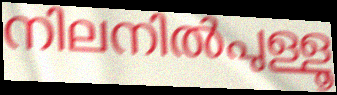
നിലനിൽപുള്ളൂ